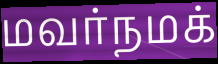
மவர்நமக்